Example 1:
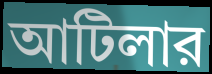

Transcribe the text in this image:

আটিলার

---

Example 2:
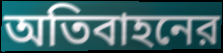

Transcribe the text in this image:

অতিবাহনের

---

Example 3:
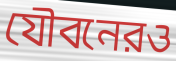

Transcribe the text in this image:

যৌবনেরও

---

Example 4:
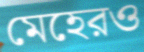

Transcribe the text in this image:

মেহেরও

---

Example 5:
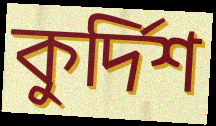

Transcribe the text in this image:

কুর্দিশ